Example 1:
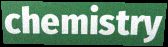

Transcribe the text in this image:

chemistry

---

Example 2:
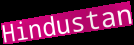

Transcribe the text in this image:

Hindustan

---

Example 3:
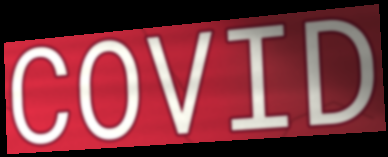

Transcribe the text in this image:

COVID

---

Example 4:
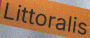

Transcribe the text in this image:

Littoralis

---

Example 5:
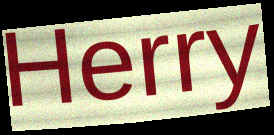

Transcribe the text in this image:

Herry